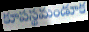
కూపస్థమండూక